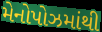
મેનોપોઝમાંથી